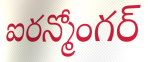
ఐరన్మోంగర్